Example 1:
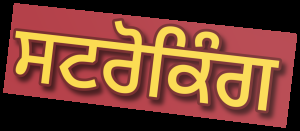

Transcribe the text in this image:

ਸਟਰੋਕਿੰਗ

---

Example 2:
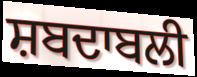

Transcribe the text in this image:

ਸ਼ਬਦਾਬਲੀ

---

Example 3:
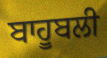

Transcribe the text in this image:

ਬਾਹੂਬਲੀ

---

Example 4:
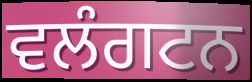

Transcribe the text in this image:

ਵਲੰਗਟਨ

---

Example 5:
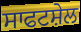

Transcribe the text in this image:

ਸਾਫਟਸ਼ੇਲ